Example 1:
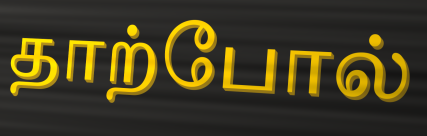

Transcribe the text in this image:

தாற்போல்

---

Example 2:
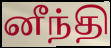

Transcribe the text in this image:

னீந்தி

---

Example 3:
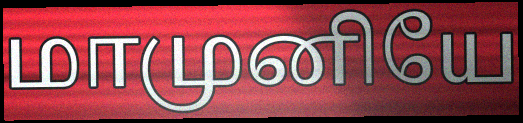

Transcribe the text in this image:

மாமுனியே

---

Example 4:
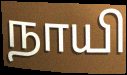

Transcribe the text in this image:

நாயி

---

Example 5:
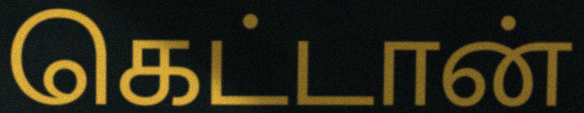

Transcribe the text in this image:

கெட்டான்